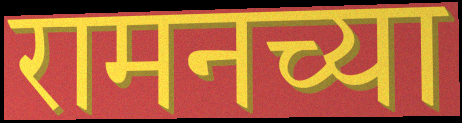
रामनच्या